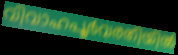
വിവാഹപൂർവരതിയിൽ